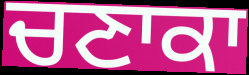
ਚਣਾਕਾ